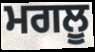
ਮਗਲੂ